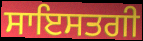
ਸਾਇਸਤਗੀ